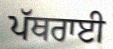
ਪੱਥਰਾਈ